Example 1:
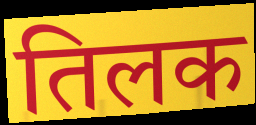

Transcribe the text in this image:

तिलक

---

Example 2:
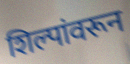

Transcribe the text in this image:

शिल्पांवरून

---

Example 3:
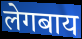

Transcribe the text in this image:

लेगबाय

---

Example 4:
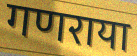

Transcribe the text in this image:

गणराया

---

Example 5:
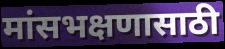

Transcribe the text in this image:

मांसभक्षणासाठी